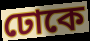
ঢোকে